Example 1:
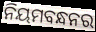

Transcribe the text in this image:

ନିୟମବନ୍ଧନର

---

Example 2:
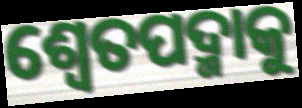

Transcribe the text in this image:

ଶ୍ୱେତପଦ୍ମାକୁ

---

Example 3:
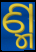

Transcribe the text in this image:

ଣ୍ମ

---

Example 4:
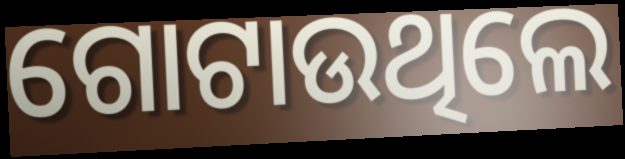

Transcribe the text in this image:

ଗୋଟାଉଥିଲେ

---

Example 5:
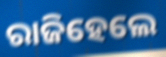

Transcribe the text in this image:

ରାଜିହେଲେ